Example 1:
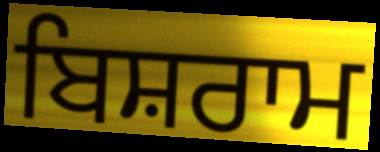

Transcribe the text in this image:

ਬਿਸ਼ਰਾਮ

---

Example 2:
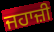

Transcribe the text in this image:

ਜਹਾਜ਼ੀ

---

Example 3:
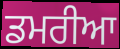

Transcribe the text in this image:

ਡਮਰੀਆ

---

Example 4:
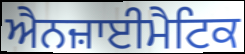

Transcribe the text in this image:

ਐਨਜ਼ਾਈਮੈਟਿਕ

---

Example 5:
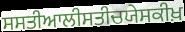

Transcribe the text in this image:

ਸਸਤੀਆਲੀਸਤੀਚਯੇਸਕੀਖ਼